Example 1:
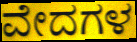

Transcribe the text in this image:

ವೇದಗಳ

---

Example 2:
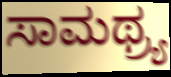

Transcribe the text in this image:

ಸಾಮಥ್ರ್ಯ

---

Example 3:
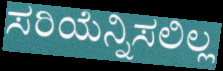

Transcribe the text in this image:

ಸರಿಯೆನ್ನಿಸಲಿಲ್ಲ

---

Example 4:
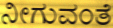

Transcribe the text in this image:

ನೀಗುವಂತೆ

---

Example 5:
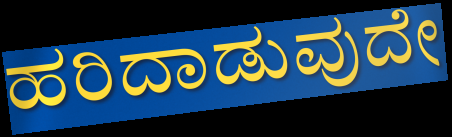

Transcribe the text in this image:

ಹರಿದಾಡುವುದೇ